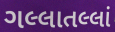
ગલ્લાતલ્લાં